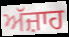
ਅੱਜ਼ਾਹ